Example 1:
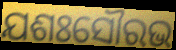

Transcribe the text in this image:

ଯଶଃସୌରଭ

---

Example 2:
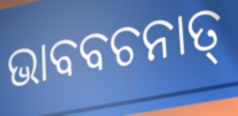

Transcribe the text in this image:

ଭାବବଚନାତ୍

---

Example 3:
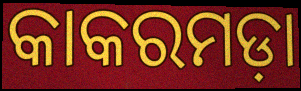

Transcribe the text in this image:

କାକରମଡ଼ା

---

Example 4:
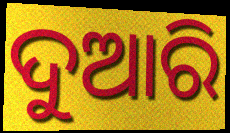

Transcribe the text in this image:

ଦୁଆରି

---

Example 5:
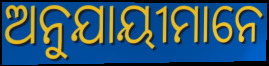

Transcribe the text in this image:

ଅନୁଯାୟୀମାନେ